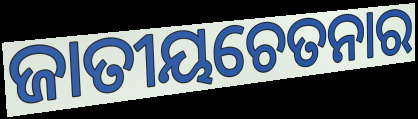
ଜାତୀୟଚେତନାର